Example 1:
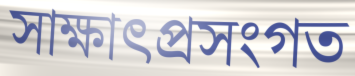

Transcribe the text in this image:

সাক্ষাৎপ্ৰসংগত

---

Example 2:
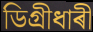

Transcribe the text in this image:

ডিগ্ৰীধাৰী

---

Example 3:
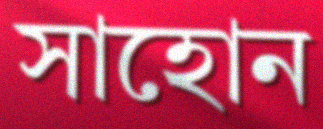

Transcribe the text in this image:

সাহোন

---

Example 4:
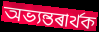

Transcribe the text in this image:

অভ্যন্তৰাৰ্থক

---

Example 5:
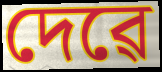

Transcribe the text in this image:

দেৱে